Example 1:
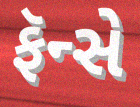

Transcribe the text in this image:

ફૅન્સે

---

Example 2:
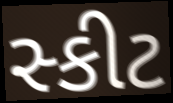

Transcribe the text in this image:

સ્કીટ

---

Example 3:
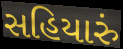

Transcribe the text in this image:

સહિયારું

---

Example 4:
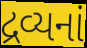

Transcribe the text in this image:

દ્રવ્યનાં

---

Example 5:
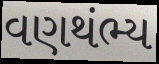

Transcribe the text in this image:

વણથંભ્ય